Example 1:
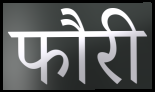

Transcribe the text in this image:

फौरी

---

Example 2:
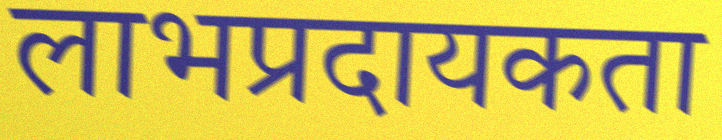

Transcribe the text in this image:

लाभप्रदायकता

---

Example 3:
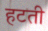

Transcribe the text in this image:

हटती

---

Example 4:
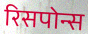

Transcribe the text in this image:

रिसपोन्स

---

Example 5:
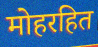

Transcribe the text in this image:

मोहरहित